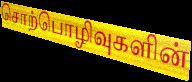
சொற்பொழிவுகளின்